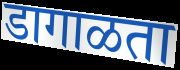
डागाळता